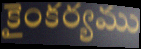
కైంకర్యము